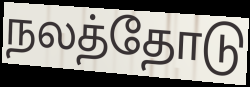
நலத்தோடு